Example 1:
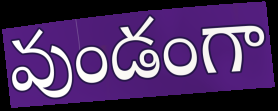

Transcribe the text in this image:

వుండంగా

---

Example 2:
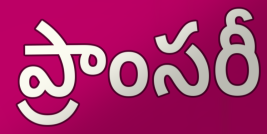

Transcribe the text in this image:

ప్రాంసరీ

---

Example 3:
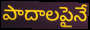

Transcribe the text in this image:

పాదాలపైనే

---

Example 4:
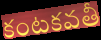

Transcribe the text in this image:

కంటకవతీ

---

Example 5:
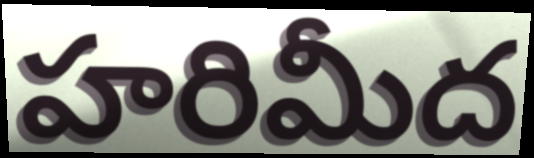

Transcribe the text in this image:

హరిమీద